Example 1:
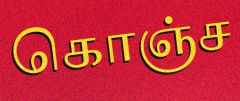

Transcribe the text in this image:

கொஞ்ச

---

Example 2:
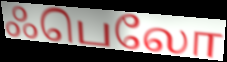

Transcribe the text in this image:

ஃபெலோ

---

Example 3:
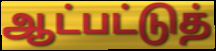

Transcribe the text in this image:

ஆட்பட்டுத்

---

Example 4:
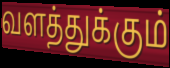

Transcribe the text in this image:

வளத்துக்கும்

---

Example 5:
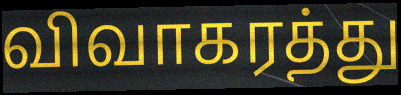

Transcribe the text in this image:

விவாகரத்து